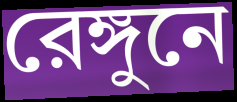
রেঙ্গুনে